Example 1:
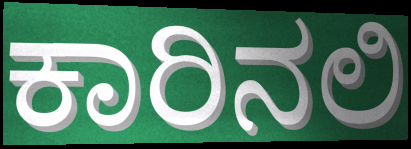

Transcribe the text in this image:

ಕಾರಿನಲಿ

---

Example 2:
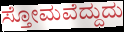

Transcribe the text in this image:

ಸ್ತೋಮವೆದ್ದುದು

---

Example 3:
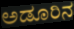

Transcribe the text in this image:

ಅಡೂರಿನ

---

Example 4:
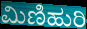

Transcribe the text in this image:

ಮಿಣಿಹುರಿ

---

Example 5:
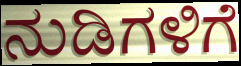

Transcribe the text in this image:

ನುಡಿಗಳಿಗೆ